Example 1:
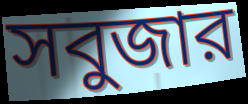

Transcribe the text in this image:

সবুজার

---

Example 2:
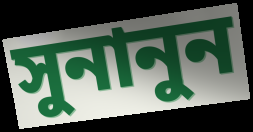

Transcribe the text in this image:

সুনানুন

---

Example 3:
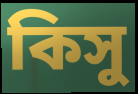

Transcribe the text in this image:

কিসু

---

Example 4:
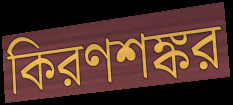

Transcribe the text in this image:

কিরণশঙ্কর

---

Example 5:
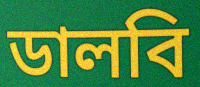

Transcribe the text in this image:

ডালবি